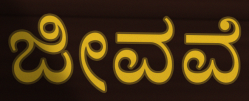
ಜೀವವೆ